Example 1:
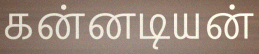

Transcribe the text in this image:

கன்னடியன்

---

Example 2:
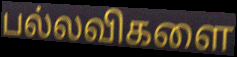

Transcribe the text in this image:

பல்லவிகளை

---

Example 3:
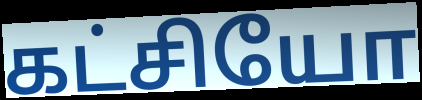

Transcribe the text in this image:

கட்சியோ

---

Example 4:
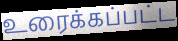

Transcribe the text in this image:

உரைக்கப்பட்ட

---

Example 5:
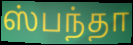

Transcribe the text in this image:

ஸ்பந்தா